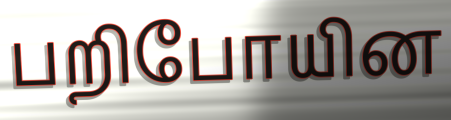
பறிபோயின